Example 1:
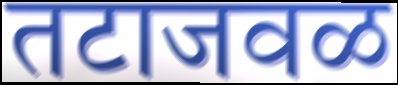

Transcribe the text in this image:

तटाजवळ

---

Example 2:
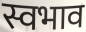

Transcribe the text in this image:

स्वभाव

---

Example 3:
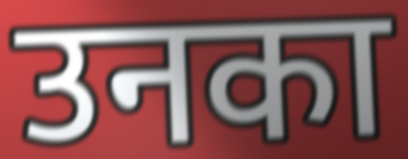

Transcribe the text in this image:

उनका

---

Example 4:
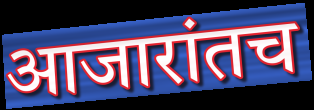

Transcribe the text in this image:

आजारांतच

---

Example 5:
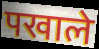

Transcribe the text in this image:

पखाले